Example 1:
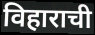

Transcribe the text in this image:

विहाराची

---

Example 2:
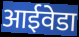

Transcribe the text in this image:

आईवेडा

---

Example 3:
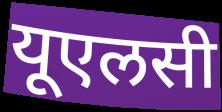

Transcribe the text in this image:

यूएलसी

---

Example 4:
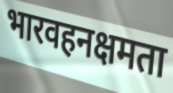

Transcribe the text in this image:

भारवहनक्षमता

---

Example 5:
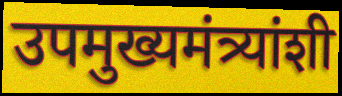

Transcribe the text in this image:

उपमुख्यमंत्र्यांशी